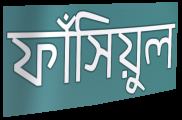
ফাঁসিয়ুল